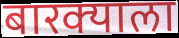
बारक्याला